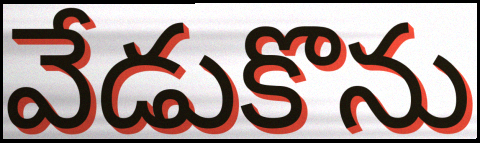
వేడుకొను